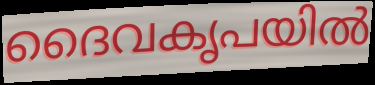
ദൈവകൃപയിൽ